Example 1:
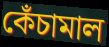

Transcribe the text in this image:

কেঁচামাল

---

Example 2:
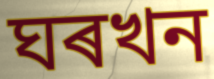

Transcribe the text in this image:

ঘৰখন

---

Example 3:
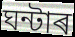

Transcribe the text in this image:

ঘন্টাৰ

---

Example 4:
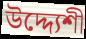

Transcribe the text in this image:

উদ্দ্যেশী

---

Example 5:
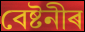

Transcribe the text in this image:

বেষ্টনীৰ